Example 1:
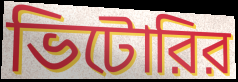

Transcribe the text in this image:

ভিটোরির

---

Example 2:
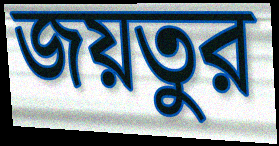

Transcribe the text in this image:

জয়তুর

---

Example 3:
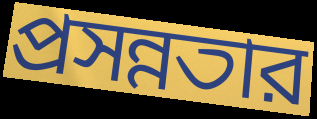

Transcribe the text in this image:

প্রসন্নতার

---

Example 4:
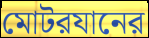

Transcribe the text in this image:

মোটরযানের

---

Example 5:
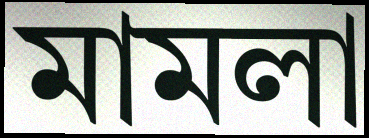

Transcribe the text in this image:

মামলা